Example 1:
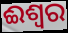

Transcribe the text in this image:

ଈଶ୍ଵର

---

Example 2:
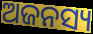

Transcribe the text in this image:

ଅଜନସ୍ୟ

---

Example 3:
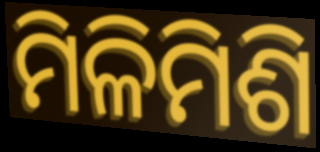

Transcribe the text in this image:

ମିଳିମିଶି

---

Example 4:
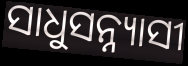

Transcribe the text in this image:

ସାଧୁସନ୍ନ୍ୟାସୀ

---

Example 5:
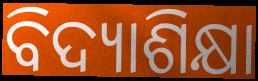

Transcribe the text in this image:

ବିଦ୍ୟାଶିକ୍ଷା